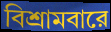
বিশ্রামবারে